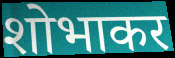
शोभाकर